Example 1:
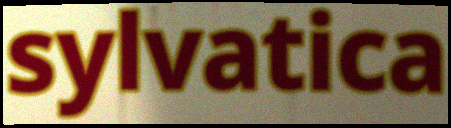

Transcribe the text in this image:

sylvatica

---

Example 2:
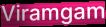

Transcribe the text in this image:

Viramgam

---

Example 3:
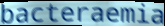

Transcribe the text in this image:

bacteraemia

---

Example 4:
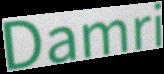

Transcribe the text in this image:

Damri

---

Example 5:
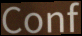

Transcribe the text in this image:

Conf